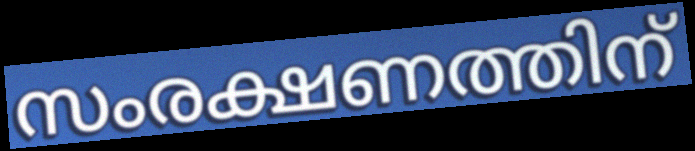
സംരക്ഷണത്തിന്